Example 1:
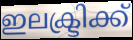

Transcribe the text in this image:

ഇലക്ട്രിക്ക്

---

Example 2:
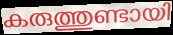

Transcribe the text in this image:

കരുത്തുണ്ടായി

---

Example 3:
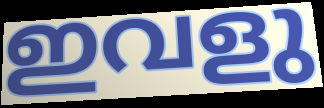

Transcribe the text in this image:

ഇവളു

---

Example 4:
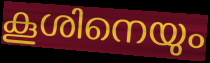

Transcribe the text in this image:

കൂശിനെയും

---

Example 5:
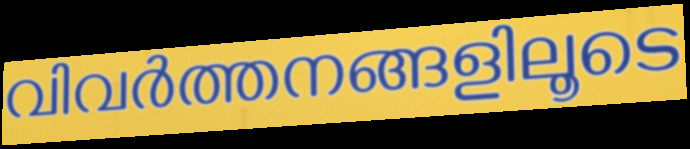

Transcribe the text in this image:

വിവർത്തനങ്ങളിലൂടെ